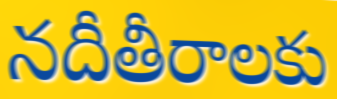
నదీతీరాలకు